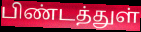
பிண்டத்துள்